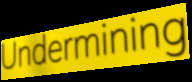
Undermining